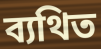
ব্যথিত